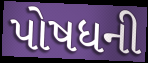
પોષધની